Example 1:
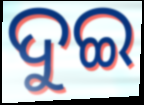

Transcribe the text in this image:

ଦୁଇ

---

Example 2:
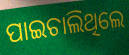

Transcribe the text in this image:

ପାଇଚାଲିଥିଲେ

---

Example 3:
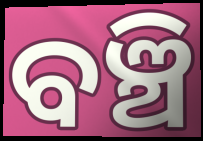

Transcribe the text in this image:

ବଞ୍ଚି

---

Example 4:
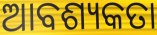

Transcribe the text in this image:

ଆବଶ୍ୟକତା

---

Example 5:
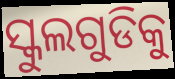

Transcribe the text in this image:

ସ୍କୁଲଗୁଡିକୁ